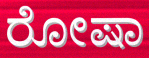
ರೋಷಾ